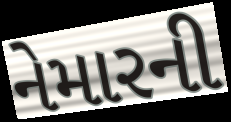
નેમારની